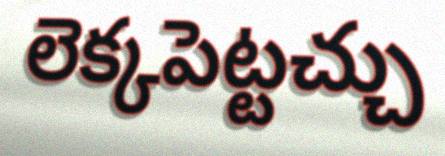
లెక్కపెట్టచ్చు